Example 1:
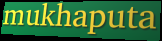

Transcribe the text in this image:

mukhaputa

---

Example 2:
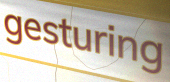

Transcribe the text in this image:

gesturing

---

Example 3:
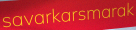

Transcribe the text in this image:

savarkarsmarak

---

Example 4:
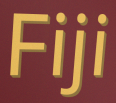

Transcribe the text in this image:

Fiji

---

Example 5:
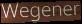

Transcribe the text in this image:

Wegener